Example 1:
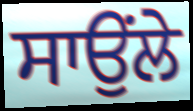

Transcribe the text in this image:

ਸਾਉਂਲੇ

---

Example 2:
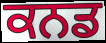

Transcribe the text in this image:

ਕਨਡ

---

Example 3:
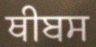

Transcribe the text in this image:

ਥੀਬਸ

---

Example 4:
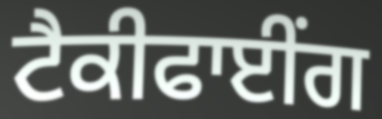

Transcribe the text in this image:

ਟੈਕੀਫਾਈਂਗ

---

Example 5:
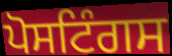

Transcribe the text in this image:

ਪੋਸਟਿੰਗਸ